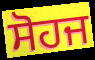
ਸੋਹਜ